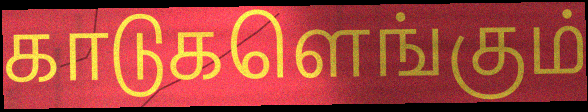
காடுகளெங்கும்